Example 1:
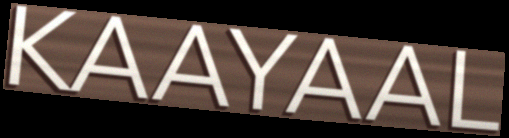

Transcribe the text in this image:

KAAYAAL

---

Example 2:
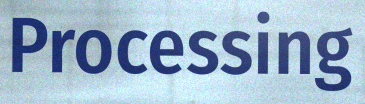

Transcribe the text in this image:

Processing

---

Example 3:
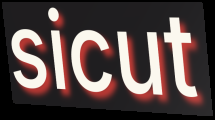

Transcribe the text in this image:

sicut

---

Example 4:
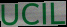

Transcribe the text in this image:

UCIL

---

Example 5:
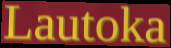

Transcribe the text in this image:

Lautoka